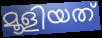
മൂളിയത്